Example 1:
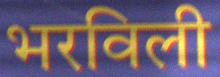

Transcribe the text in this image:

भरविली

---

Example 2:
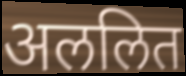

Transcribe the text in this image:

अललित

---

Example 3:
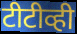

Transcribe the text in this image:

टीटीव्ही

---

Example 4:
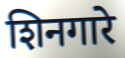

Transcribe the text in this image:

शिनगारे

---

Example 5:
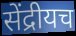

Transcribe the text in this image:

सेंद्रीयच